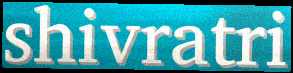
shivratri